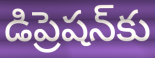
డిప్రెషన్‌కు